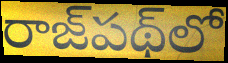
రాజ్‌పథ్‌లో